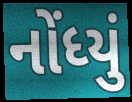
નોંધ્યું